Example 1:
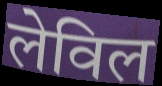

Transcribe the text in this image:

लेविल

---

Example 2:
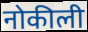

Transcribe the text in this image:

नोकीली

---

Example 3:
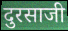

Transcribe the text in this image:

दुरसाजी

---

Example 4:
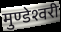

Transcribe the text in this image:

मुण्डेश्वरी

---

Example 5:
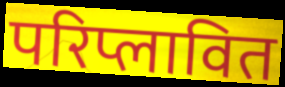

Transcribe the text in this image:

परिप्लावित